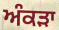
ਅੰਕੜਾ